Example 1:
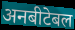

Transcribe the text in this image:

अनबीटेबल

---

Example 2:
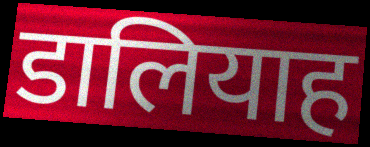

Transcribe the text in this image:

डालियाह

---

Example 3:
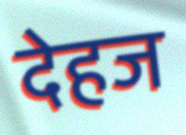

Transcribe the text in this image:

देहज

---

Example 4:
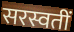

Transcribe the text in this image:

सरस्वतीं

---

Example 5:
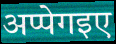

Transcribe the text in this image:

अप्पेगइए